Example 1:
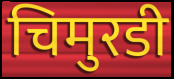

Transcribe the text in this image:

चिमुरडी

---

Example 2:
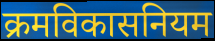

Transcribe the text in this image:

क्रमविकासनियम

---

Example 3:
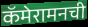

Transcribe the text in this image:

कॅमेरामनची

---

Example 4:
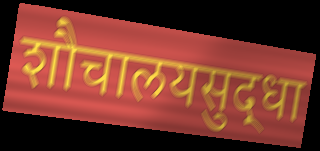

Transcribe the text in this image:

शौचालयसुद्धा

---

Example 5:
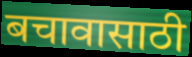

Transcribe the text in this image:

बचावासाठी